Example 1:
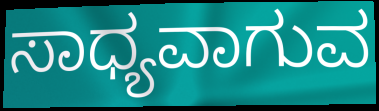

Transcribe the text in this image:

ಸಾಧ್ಯವಾಗುವ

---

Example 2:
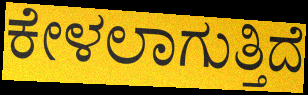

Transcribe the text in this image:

ಕೇಳಲಾಗುತ್ತಿದೆ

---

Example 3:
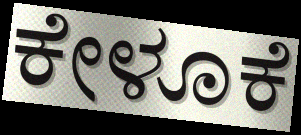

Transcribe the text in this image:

ಕೇಳೂಕೆ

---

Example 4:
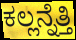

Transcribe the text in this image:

ಕಲ್ಲನ್ನೆತ್ತಿ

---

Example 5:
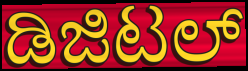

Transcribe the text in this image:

ಡಿಜಿಟಲ್